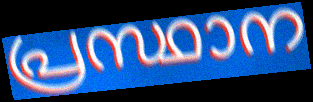
പ്രസ്ഥാന